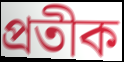
প্রতীক